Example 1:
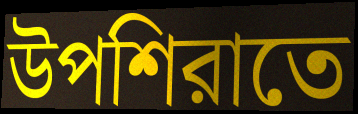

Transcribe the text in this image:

উপশিরাতে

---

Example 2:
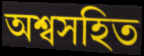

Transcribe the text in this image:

অশ্বসহিত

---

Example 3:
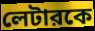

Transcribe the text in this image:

লেটারকে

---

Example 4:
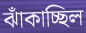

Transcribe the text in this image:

ঝাঁকাচ্ছিল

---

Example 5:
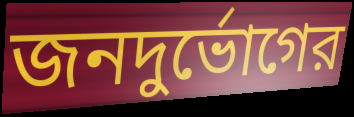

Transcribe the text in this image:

জনদুর্ভোগের